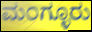
ಮಂಗ್ಳೂರು